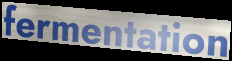
fermentation